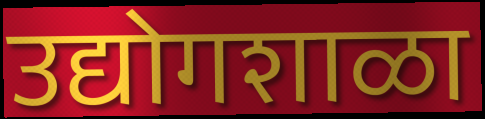
उद्योगशाळा